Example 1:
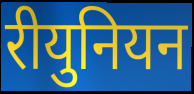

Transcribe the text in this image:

रीयुनियन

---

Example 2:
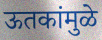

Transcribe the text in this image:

ऊतकांमुळे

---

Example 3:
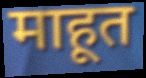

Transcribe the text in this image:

माहूत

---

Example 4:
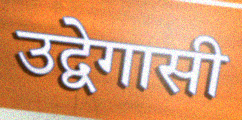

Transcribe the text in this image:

उद्वेगासी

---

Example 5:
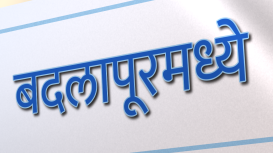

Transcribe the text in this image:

बदलापूरमध्ये